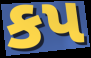
કપ